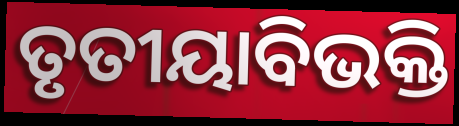
ତୃତୀୟାବିଭକ୍ତି